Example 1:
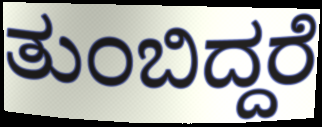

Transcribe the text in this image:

ತುಂಬಿದ್ದರೆ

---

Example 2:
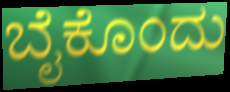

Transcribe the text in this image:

ಬೈಕೊಂದು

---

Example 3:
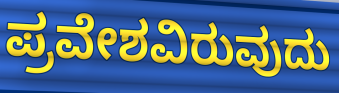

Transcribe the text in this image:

ಪ್ರವೇಶವಿರುವುದು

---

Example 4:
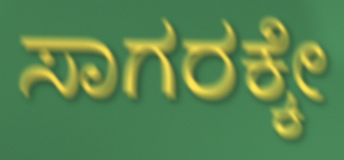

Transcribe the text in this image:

ಸಾಗರಕ್ಕೇ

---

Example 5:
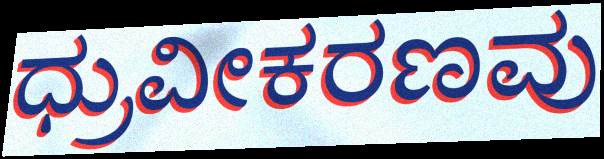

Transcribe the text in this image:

ಧ್ರುವೀಕರಣವು